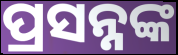
ପ୍ରସନ୍ନଙ୍କ